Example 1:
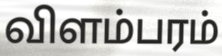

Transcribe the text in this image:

விளம்பரம்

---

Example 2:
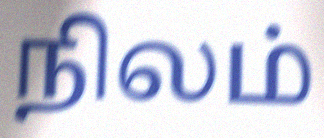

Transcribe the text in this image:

நிலம்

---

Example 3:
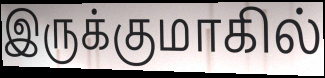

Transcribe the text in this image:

இருக்குமாகில்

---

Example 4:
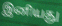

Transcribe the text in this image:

இனியது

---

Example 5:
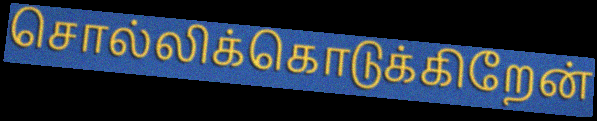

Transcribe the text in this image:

சொல்லிக்கொடுக்கிறேன்